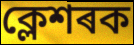
ক্লেশৰক